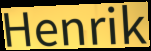
Henrik